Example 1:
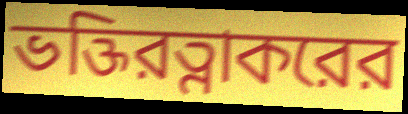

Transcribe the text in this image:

ভক্তিরত্নাকরের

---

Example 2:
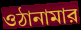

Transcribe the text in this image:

ওঠানামার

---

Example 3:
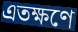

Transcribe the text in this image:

এতক্ষণে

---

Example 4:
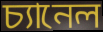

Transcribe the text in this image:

চ্যানেল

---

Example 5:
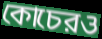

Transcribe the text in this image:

কোচেরও